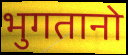
भुगतानो